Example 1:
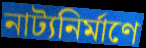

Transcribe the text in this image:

নাট্যনির্মাণে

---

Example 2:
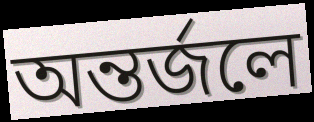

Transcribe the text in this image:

অন্তর্জলে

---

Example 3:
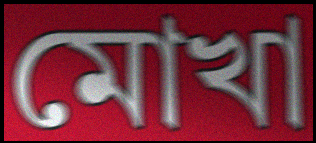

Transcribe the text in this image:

মোখা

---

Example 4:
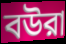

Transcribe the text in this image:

বউরা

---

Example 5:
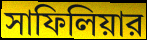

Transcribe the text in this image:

সাফিলিয়ার